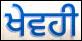
ਖੇਵਹੀ